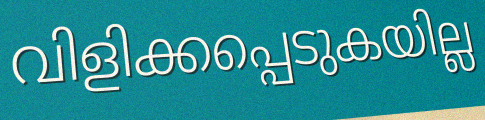
വിളിക്കപ്പെടുകയില്ല